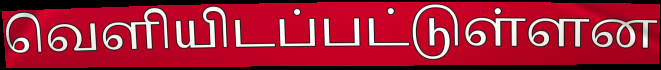
வெளியிடப்பட்டுள்ளன